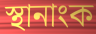
স্থানাংক